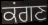
ਕਂਗਣ